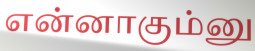
என்னாகும்னு